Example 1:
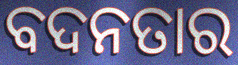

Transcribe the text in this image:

ବଦନତାର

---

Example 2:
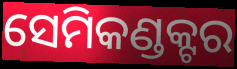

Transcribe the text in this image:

ସେମିକଣ୍ଡକ୍ଟର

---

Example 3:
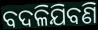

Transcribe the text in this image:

ବଦଳିଯିବଣି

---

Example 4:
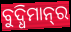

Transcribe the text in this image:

ବୁଦ୍ଧିମାନ୍‍ର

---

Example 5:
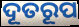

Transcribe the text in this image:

ଦୂତରୂପ